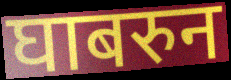
घाबरुन